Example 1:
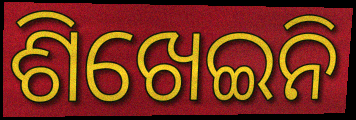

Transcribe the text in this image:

ଶିଖେଇନି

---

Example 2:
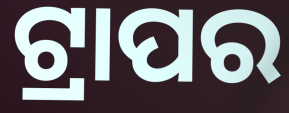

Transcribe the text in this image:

ଟ୍ରାପର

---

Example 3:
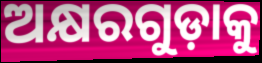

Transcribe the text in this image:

ଅକ୍ଷରଗୁଡ଼ାକୁ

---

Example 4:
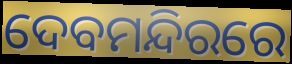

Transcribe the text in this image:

ଦେବମନ୍ଦିରରେ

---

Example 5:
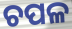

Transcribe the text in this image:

ଚପଳ